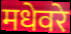
मधेवरे